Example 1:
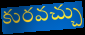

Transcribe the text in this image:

కురవచ్చు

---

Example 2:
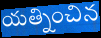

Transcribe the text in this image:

యత్నించిన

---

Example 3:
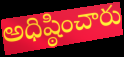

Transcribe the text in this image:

అధిష్ఠించారు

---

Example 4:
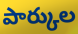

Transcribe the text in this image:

పార్కుల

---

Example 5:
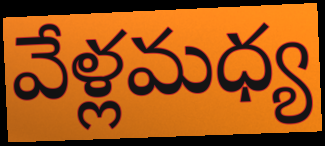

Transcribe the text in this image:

వేళ్లమధ్య